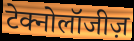
टेक्नोलॉजीज़